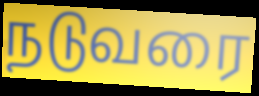
நடுவரை